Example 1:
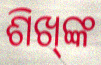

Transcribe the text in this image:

ଶିଖ୍‍ଙ୍କ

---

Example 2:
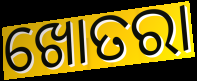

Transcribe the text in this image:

ଖୋତରା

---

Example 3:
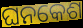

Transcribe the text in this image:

ଘନକେଶ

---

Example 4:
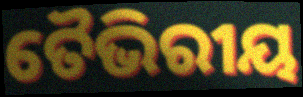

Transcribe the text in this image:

ତୈଭିରୀୟ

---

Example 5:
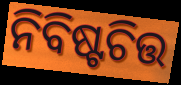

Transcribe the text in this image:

ନିବିଷ୍ଟଚିତ୍ତ